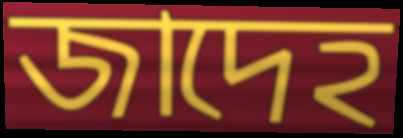
জাদেহ